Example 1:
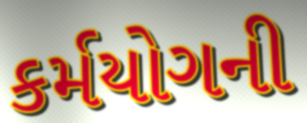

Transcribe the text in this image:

કર્મયોગની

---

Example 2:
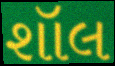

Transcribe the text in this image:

શૉલ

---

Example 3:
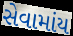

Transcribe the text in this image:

સેવામાંય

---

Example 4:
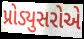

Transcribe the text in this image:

પ્રોડ્યુસરોએ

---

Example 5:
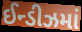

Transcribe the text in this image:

ઈન્ડીઝમાં